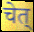
चेत्